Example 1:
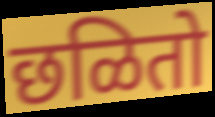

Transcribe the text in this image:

छळितो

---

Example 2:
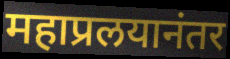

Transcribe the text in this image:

महाप्रलयानंतर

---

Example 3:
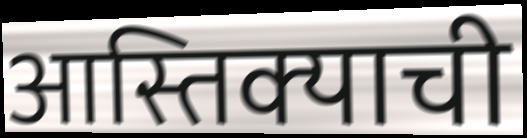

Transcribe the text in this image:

आस्तिक्याची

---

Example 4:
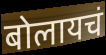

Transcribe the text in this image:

बोलायचं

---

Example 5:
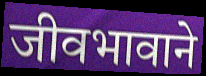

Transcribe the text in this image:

जीवभावाने